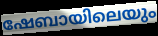
ഷേബായിലെയും